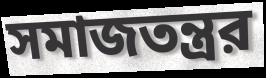
সমাজতন্ত্রর